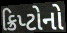
ક્રિપ્ટોનો